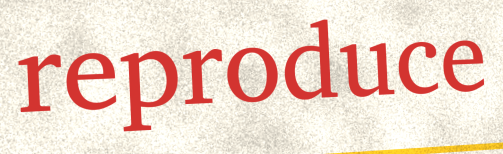
reproduce